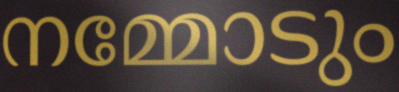
നമ്മോടും